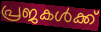
പ്രജകൾക്ക്